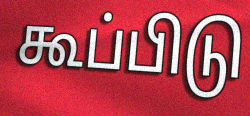
கூப்பிடு